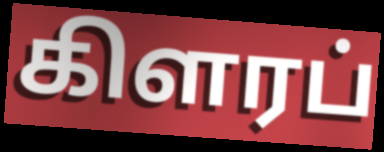
கிளரப்